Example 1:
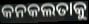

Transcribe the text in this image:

କନକଲତାକୁ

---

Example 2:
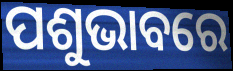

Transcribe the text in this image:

ପଶୁଭାବରେ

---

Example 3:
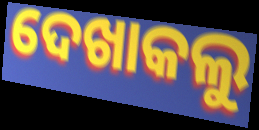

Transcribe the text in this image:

ଦେଖାକଲୁ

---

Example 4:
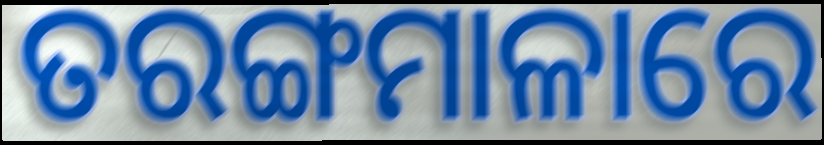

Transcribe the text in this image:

ତରଙ୍ଗମାଳାରେ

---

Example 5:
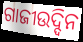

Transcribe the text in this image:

ଗାଜୀଉଦ୍ଦିନ